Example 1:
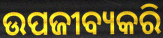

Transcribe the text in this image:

ଉପଜୀବ୍ୟକରି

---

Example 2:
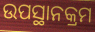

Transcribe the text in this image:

ଉପସ୍ଥାନକ୍ରମ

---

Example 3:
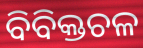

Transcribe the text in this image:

ବିବିକ୍ତଚଳ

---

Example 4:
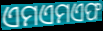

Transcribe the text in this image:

ଏମଏମଏଫ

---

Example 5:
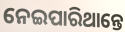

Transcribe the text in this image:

ନେଇପାରିଥାନ୍ତେ